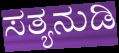
ಸತ್ಯನುಡಿ